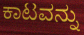
ಕಾಟವನ್ನು